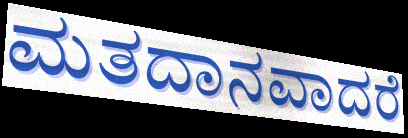
ಮತದಾನವಾದರೆ